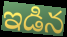
ఇడిన